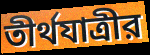
তীর্থযাত্রীর